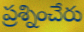
ప్రశ్నించేరు